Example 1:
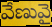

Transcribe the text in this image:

వేణువై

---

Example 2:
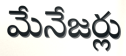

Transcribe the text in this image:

మేనేజర్లు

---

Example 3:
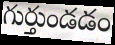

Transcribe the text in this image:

గుర్తుండడం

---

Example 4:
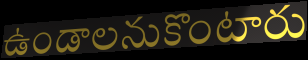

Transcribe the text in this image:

ఉండాలనుకొంటారు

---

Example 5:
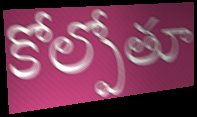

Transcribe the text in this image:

కోల్పోతూ